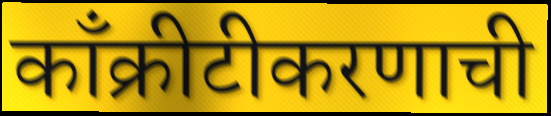
काँक्रीटीकरणाची